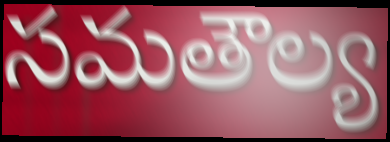
సమతౌల్య